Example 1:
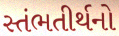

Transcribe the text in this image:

સ્તંભતીર્થનો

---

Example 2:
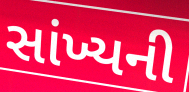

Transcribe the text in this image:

સાંખ્યની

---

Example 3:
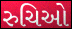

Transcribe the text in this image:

રુચિઓ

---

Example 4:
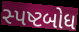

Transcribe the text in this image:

સ્પષ્ટબોધ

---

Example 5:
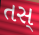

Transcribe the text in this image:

તસ્